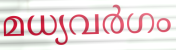
മധ്യവർഗം